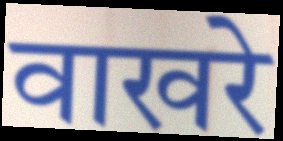
वाखरे